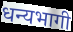
धन्यभागी